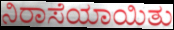
ನಿರಾಸೆಯಾಯಿತು